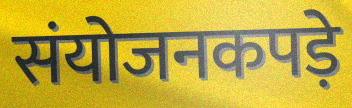
संयोजनकपड़े